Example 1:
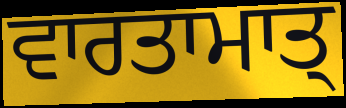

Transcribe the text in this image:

ਵਾਰਤਾਮਾਤ੍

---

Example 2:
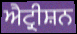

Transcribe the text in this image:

ਐਟ੍ਰੀਸ਼ਨ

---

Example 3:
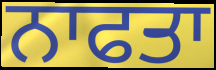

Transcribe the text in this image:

ਨਾਫਤਾ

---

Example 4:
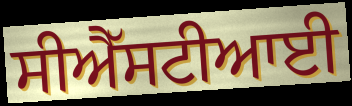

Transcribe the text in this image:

ਸੀਐੱਸਟੀਆਈ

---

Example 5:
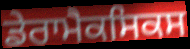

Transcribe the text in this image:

ਡੇਰਾਮੈਕਸਿਕਸ